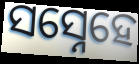
ସସ୍ନେହେ